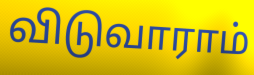
விடுவாராம்